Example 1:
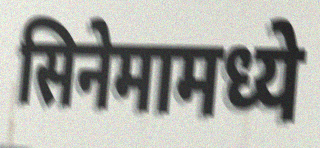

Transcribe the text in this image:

सिनेमामध्ये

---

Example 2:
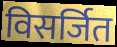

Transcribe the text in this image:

विसर्जित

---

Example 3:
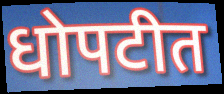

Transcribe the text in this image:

धोपटीत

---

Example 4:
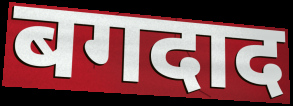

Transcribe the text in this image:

बगदाद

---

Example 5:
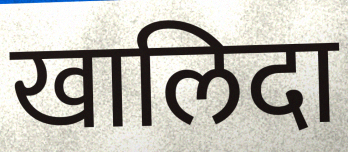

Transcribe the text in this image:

खालिदा